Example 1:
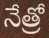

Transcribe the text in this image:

నేత్రో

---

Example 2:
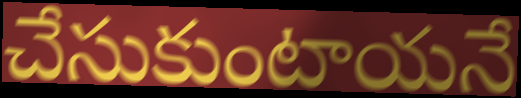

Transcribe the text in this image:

చేసుకుంటాయనే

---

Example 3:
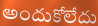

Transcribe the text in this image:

అందుకోలేదు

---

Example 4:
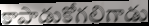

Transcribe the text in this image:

కాపాడుకోగలిగాడు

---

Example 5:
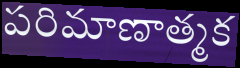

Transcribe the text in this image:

పరిమాణాత్మక